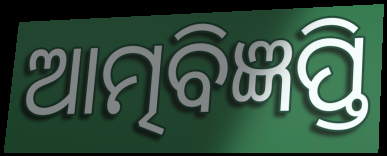
ଆତ୍ମବିଜ୍ଞପ୍ତି